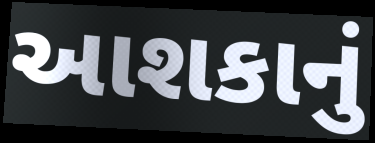
આશકાનું